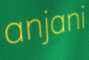
anjani